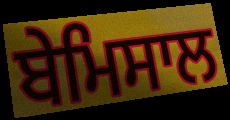
ਬੇਮਿਸਾਲ